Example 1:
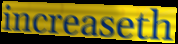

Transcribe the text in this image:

increaseth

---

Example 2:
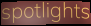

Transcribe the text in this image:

spotlights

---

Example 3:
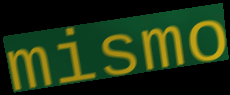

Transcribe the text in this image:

mismo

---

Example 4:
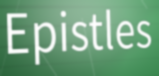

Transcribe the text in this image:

Epistles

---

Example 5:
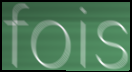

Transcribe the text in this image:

fois